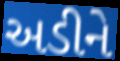
અડીને